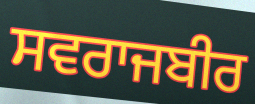
ਸਵਰਾਜਬੀਰ